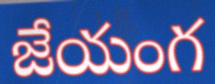
జేయంగ